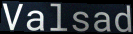
Valsad